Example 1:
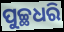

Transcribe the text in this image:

ପୁଚ୍ଛଧରି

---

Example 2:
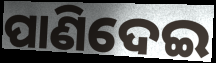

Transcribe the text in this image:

ପାଣିଦେଇ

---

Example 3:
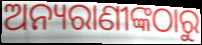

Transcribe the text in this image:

ଅନ୍ୟରାଣୀଙ୍କଠାରୁ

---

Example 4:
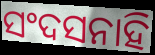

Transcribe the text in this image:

ସଂଦସନାହି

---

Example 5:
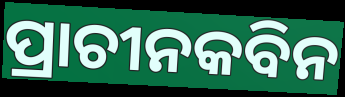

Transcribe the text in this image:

ପ୍ରାଚୀନକବିନ